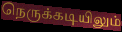
நெருக்கடியிலும்